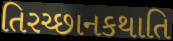
તિરચ્છાનકથાતિ